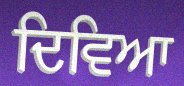
ਦਿਵਿਆ